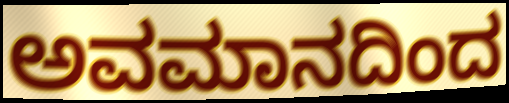
ಅವಮಾನದಿಂದ